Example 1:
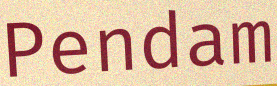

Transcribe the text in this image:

Pendam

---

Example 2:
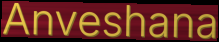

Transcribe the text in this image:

Anveshana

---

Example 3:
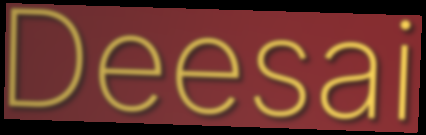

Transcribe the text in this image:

Deesai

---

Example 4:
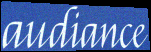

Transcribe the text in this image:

audiance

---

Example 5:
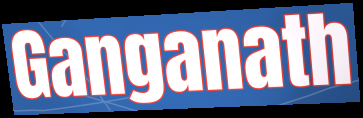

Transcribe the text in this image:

Ganganath